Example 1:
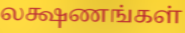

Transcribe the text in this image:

லக்ஷணங்கள்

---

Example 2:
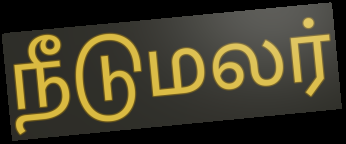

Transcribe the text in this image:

நீடுமலர்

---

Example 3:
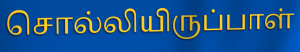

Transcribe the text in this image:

சொல்லியிருப்பாள்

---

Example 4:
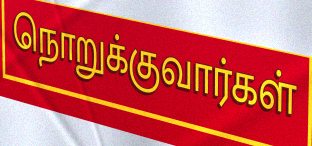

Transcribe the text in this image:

நொறுக்குவார்கள்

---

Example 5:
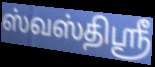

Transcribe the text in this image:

ஸ்வஸ்திஸ்ரீ